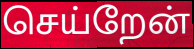
செய்றேன்